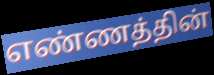
எண்ணத்தின்